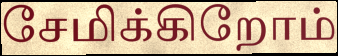
சேமிக்கிறோம்